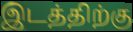
இடத்திற்கு